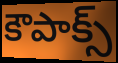
కౌపాక్స్